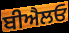
ਬੀਐਲਓ